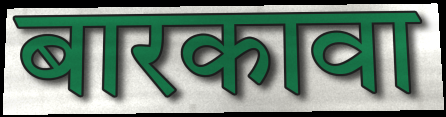
बारकावा